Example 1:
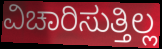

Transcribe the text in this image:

ವಿಚಾರಿಸುತ್ತಿಲ್ಲ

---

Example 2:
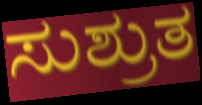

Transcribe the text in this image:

ಸುಶ್ರುತ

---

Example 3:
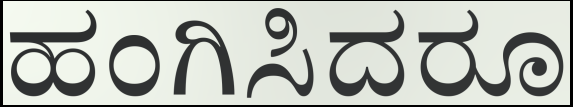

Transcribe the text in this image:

ಹಂಗಿಸಿದರೂ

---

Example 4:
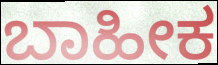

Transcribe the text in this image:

ಬಾಹೀಕ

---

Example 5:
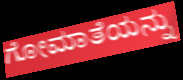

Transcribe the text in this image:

ಗೋಮಾತೆಯನ್ನು